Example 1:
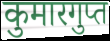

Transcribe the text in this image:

कुमारगुप्त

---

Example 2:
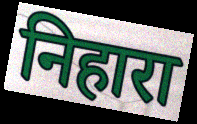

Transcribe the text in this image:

निहारा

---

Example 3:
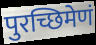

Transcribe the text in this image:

पुरच्छिमेणं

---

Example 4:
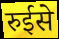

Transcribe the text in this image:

रुईसे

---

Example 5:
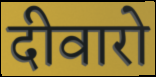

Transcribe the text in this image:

दीवारो